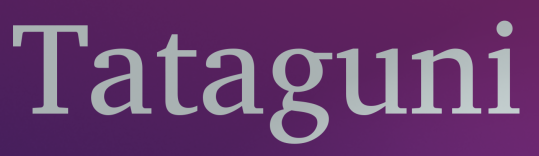
Tataguni